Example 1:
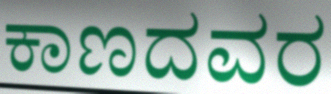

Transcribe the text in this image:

ಕಾಣದವರ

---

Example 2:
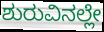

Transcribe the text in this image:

ಶುರುವಿನಲ್ಲೇ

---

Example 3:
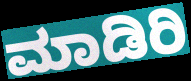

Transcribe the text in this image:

ಮಾಡಿರಿ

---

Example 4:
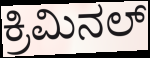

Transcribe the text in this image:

ಕ್ರಿಮಿನಲ್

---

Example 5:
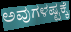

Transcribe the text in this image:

ಅವುಗಳಷ್ಟಕ್ಕೆ